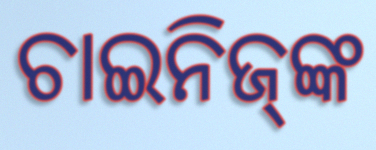
ଚାଇନିଜ୍‌ଙ୍କ